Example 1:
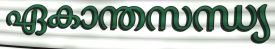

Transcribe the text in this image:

ഏകാന്തസന്ധ്യ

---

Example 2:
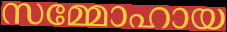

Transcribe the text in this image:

സമ്മോഹായ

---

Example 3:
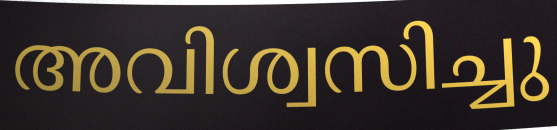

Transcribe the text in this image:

അവിശ്വസിച്ചു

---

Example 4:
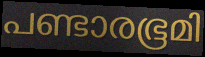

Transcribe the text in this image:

പണ്ടാരഭൂമി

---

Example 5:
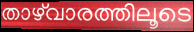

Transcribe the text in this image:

താഴ്‌വാരത്തിലൂടെ